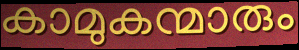
കാമുകന്മാരും